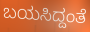
ಬಯಸಿದ್ದಂತೆ